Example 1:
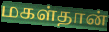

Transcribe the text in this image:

மகள்தான்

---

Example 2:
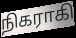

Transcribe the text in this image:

நிகராகி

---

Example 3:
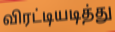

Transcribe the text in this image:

விரட்டியடித்து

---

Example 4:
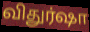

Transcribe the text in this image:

விதுர்ஷா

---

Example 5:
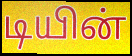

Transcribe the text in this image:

டியின்